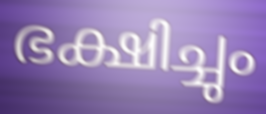
ഭക്ഷിച്ചും